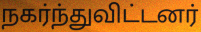
நகர்ந்துவிட்டனர்